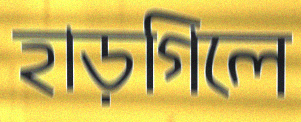
হাড়গিলে